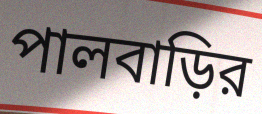
পালবাড়ির